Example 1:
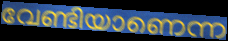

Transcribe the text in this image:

വേണ്ടിയാണെന്ന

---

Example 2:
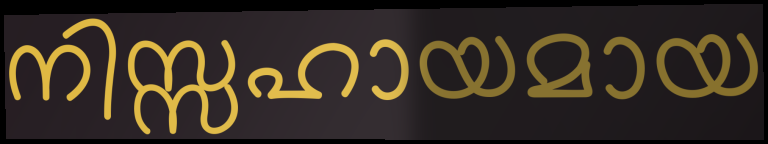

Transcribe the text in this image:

നിസ്സഹായമായ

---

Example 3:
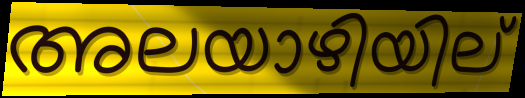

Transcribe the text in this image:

അലയാഴിയില്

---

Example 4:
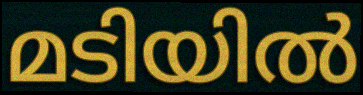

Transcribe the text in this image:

മടിയിൽ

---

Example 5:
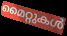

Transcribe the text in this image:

മൈറ്റുകൾ